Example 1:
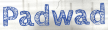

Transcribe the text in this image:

Padwad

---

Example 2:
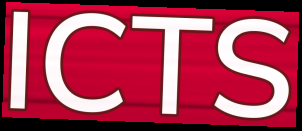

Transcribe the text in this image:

ICTS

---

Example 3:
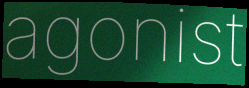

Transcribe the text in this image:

agonist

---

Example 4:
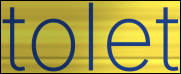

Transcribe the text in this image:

tolet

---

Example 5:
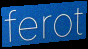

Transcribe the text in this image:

ferot